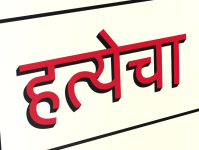
हत्येचा